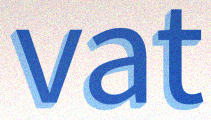
vat